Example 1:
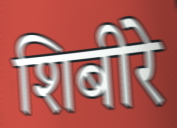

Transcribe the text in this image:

शिबीरे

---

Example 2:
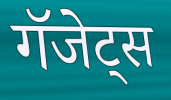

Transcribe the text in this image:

गॅजेट्स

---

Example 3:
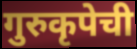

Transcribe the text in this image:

गुरुकृपेची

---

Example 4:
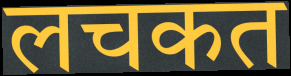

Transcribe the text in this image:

लचकत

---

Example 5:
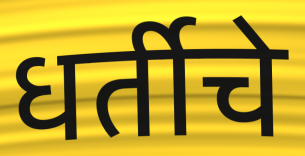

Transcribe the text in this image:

धर्तीचे